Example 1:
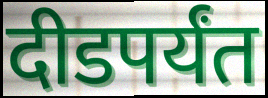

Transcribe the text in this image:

दीडपर्यंत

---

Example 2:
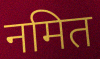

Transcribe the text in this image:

नमित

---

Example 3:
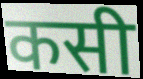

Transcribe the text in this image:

कसी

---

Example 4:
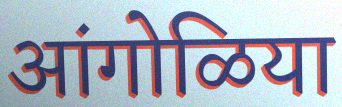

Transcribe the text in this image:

आंगोळिया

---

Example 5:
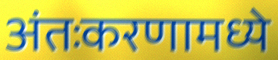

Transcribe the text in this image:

अंतःकरणामध्ये